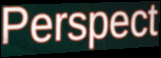
Perspect